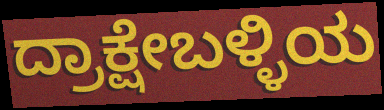
ದ್ರಾಕ್ಷೇಬಳ್ಳಿಯ